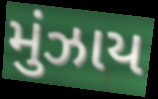
મુંઝાય